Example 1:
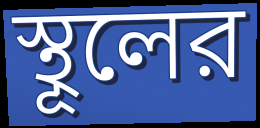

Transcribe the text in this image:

স্থূলের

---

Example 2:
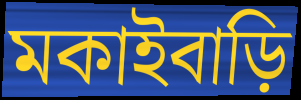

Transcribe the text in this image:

মকাইবাড়ি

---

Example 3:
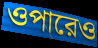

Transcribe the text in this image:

ওপারেও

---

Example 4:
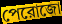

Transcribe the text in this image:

পেরোজো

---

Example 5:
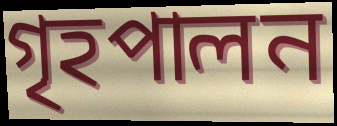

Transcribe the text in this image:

গৃহপালন